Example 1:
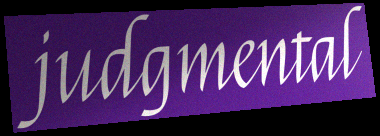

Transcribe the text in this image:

judgmental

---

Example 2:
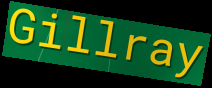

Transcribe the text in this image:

Gillray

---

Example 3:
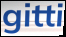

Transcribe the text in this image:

gitti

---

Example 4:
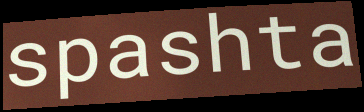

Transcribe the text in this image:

spashta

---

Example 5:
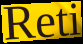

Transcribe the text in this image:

Reti